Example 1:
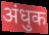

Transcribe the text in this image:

अंधुक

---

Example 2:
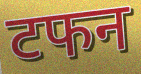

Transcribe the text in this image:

टफन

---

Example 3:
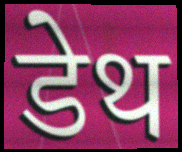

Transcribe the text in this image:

डेथ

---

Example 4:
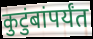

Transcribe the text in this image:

कुटुंबांपर्यंत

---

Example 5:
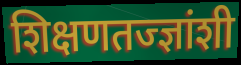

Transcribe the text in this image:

शिक्षणतज्ज्ञांशी